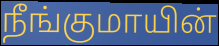
நீங்குமாயின்